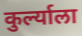
कुर्ल्याला